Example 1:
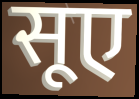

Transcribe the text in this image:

सूए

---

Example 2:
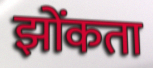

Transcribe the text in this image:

झोंकता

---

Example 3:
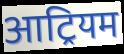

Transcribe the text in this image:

आट्रियम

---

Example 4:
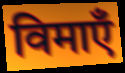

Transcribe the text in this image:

विमाएँ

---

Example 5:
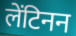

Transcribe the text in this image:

लेंटिनन